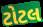
ટોટલ